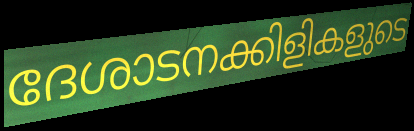
ദേശാടനക്കിളികളുടെ